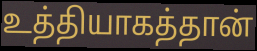
உத்தியாகத்தான்